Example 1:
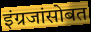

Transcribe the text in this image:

इंग्रजांसोबत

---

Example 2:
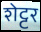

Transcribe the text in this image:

शेट्टर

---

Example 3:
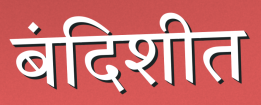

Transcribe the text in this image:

बंदिशीत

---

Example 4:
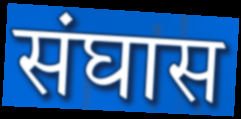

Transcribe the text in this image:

संघास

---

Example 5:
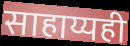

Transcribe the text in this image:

साहाय्यही